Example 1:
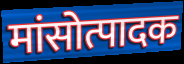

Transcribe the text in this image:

मांसोत्पादक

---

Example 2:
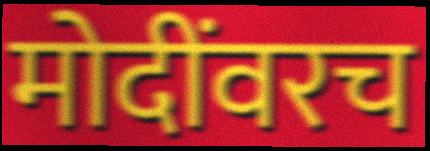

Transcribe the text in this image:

मोदींवरच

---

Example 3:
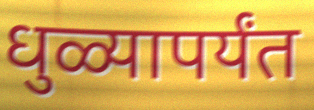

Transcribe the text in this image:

धुळ्यापर्यंत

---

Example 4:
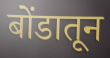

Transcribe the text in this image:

बोंडातून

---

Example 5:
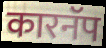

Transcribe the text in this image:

कारनॅप